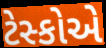
ટેસ્કોએ